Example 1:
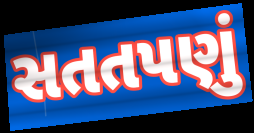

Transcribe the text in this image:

સતતપણું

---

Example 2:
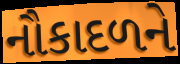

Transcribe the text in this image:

નૌકાદળને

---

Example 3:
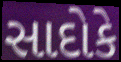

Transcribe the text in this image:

સાદોકે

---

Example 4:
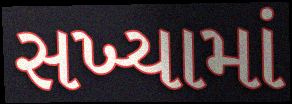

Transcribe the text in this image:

સખ્યામાં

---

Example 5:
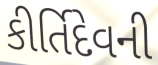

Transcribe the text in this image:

કીર્તિદેવની